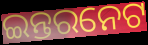
ଇନ୍ତରନେଟ